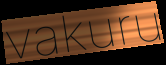
vakuru